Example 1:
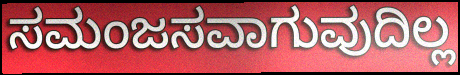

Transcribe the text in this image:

ಸಮಂಜಸವಾಗುವುದಿಲ್ಲ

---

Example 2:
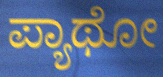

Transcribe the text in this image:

ಪ್ಯಾಥೋ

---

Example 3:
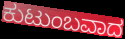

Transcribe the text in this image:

ಕುಟುಂಬವಾದ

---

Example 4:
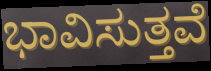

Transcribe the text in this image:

ಭಾವಿಸುತ್ತವೆ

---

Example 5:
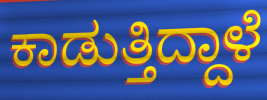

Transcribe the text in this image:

ಕಾಡುತ್ತಿದ್ದಾಳೆ